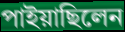
পাইয়াছিলেন